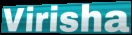
Virisha